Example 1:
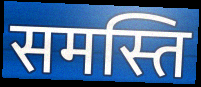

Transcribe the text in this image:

समस्ति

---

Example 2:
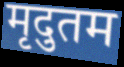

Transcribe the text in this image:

मृदुतम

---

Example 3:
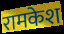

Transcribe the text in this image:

रामकेश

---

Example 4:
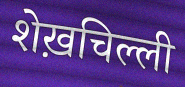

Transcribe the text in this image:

शेख़चिल्ली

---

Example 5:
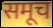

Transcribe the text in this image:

समूच